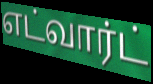
எட்வார்ட்